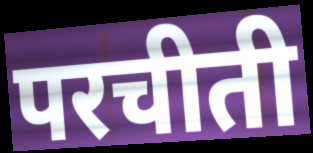
परचीती